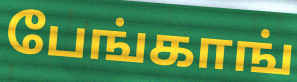
பேங்காங்